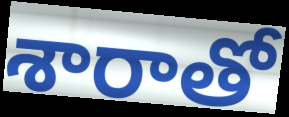
శారాతో